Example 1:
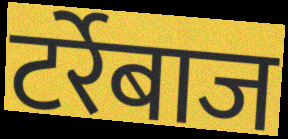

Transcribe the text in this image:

टर्रेबाज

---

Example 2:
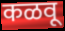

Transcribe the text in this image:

कळवू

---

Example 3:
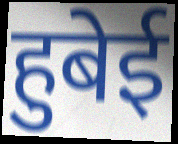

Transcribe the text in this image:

हुबेई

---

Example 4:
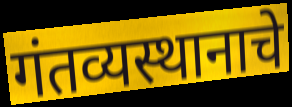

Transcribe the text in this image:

गंतव्यस्थानाचे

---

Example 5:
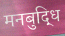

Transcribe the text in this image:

मनबुद्धि